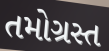
તમોગ્રસ્ત